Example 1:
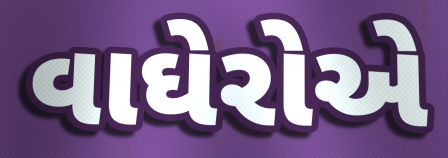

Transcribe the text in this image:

વાઘેરોએ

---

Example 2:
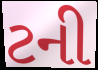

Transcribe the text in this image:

ટની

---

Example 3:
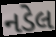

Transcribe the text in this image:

નડેલ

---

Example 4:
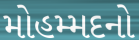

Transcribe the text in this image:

મોહમ્મદનો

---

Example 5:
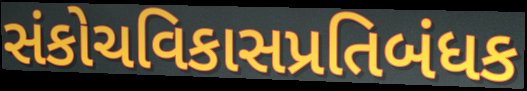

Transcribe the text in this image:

સંકોચવિકાસપ્રતિબંધક